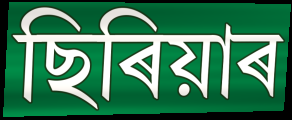
ছিৰিয়াৰ